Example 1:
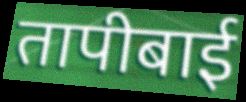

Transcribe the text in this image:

तापीबाई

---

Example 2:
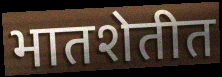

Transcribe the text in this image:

भातशेतीत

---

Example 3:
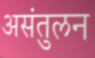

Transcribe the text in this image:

असंतुलन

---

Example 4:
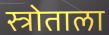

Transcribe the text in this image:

स्त्रोताला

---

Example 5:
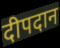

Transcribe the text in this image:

दीपदान